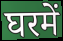
घरमें